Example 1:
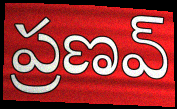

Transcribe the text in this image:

ప్రణవ్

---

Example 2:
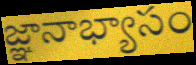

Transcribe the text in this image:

జ్ఞానాభ్యాసం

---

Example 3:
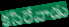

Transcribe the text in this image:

కసిరేవాడు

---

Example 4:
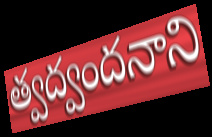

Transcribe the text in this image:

త్వద్వందనాని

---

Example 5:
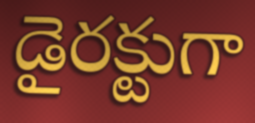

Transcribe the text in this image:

డైరక్టుగా